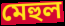
মেহুল